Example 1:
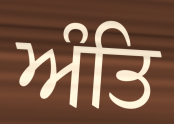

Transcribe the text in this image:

ਅੰਤਿ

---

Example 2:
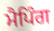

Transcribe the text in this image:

ਮੈਪਿੰਗ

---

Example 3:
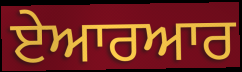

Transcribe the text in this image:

ਏਆਰਆਰ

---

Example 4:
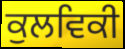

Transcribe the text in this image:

ਕੁਲਵਿਕੀ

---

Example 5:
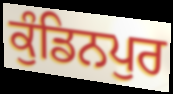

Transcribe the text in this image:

ਕੁੰਡਿਨਪੁਰ